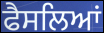
ਫੈਸਲਿਆਂ